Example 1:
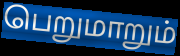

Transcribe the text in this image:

பெறுமாறும்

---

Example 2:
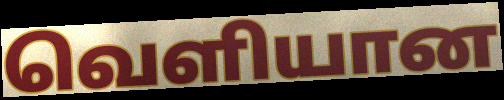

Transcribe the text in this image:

வெளியான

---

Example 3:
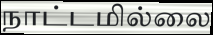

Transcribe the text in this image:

நாட்டமில்லை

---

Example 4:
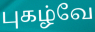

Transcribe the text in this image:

புகழ்வே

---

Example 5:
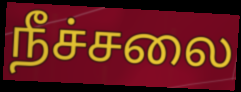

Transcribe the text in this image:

நீச்சலை